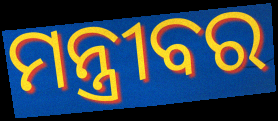
ମନ୍ତ୍ରୀବର